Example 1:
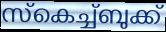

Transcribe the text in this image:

സ്‌കെച്ച്ബുക്ക്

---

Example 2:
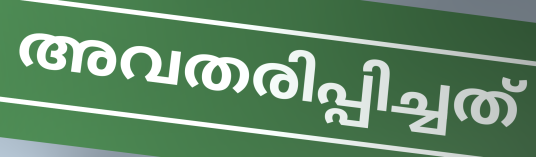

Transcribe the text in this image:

അവതരിപ്പിച്ചത്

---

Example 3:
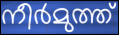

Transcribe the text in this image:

നീർമുത്ത്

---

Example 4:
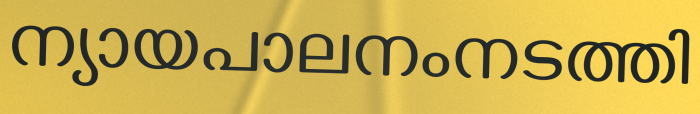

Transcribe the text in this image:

ന്യായപാലനംനടത്തി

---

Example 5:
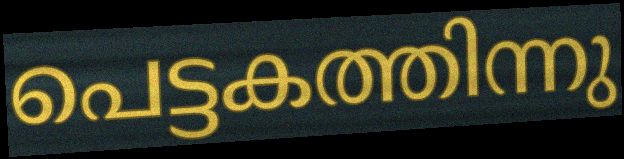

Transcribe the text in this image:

പെട്ടകത്തിന്നു